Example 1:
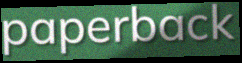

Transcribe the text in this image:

paperback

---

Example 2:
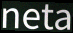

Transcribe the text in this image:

neta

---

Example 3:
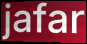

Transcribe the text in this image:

jafar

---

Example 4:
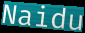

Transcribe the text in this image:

Naidu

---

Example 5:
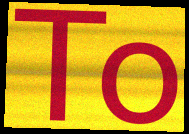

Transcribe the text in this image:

To